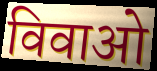
विवाओ